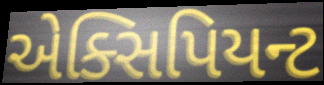
એક્સિપિયન્ટ